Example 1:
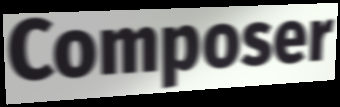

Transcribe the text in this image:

Composer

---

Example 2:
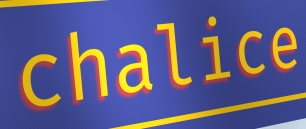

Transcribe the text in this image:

chalice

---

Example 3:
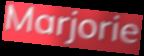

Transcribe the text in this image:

Marjorie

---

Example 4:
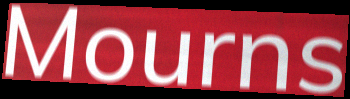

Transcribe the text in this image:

Mourns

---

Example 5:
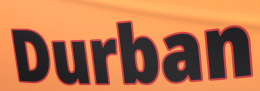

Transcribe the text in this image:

Durban